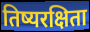
तिष्यरक्षिता